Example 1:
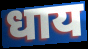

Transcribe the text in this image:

धाय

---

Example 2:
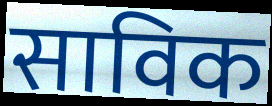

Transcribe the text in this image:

साविक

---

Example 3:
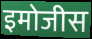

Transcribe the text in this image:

इमोजीस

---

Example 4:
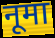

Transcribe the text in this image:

नूमा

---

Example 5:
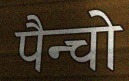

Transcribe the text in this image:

पैन्चो